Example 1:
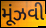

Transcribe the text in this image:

મૂંઝવી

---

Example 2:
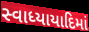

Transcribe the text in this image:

સ્વાધ્યાયાદિમાં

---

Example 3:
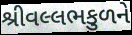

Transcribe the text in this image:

શ્રીવલ્લભકુળને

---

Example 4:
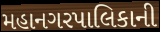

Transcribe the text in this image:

મહાનગરપાલિકાની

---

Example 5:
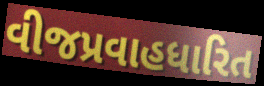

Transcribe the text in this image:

વીજપ્રવાહધારિત